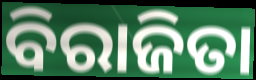
ବିରାଜିତା